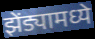
झेंड्यामध्ये